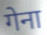
गेना